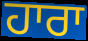
ਹਾਰਾ